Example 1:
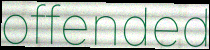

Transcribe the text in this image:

offended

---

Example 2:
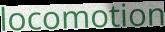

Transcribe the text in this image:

locomotion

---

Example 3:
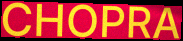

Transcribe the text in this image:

CHOPRA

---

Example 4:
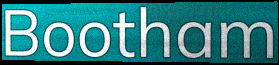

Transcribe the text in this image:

Bootham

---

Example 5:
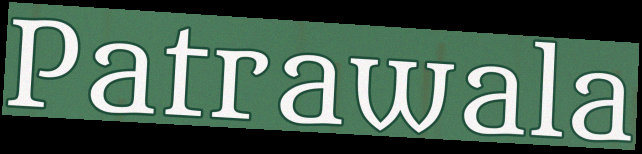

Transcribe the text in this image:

Patrawala